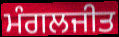
ਮੰਗਲਜੀਤ